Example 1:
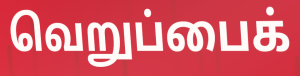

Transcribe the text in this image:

வெறுப்பைக்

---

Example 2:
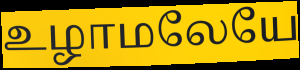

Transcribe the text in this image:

உழாமலேயே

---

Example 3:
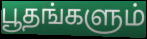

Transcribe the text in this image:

பூதங்களும்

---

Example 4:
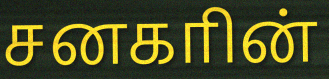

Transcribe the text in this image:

சனகரின்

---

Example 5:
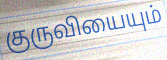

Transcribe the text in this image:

குருவியையும்